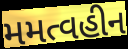
મમત્વહીન